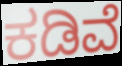
ಕಡಿವೆ